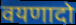
वयणादो